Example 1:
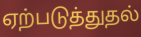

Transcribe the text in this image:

ஏற்படுத்துதல்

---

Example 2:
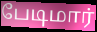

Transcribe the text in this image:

பேடிமார்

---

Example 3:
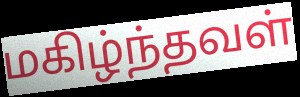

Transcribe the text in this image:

மகிழ்ந்தவள்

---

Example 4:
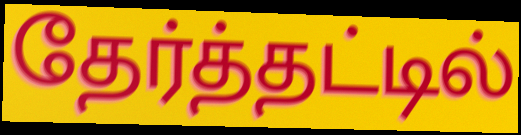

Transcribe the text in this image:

தேர்த்தட்டில்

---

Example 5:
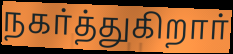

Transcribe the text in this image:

நகர்த்துகிறார்